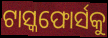
ଟାସ୍କଫୋର୍ସକୁ